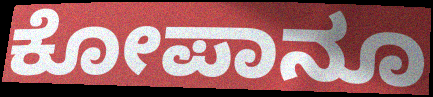
ಕೋಪಾನೂ